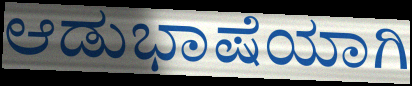
ಆಡುಭಾಷೆಯಾಗಿ